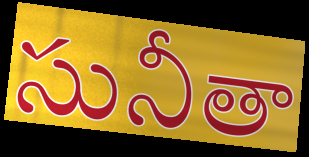
సునీతా